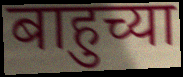
बाहुच्या